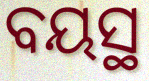
ବୟସ୍ଥ